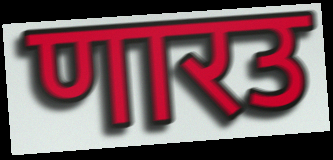
णारउ